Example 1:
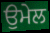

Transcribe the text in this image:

ਉਮੇਲ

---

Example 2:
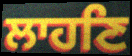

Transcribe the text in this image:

ਲਾਹਣਿ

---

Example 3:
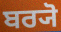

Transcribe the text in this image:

ਬਰ੍ਯੋ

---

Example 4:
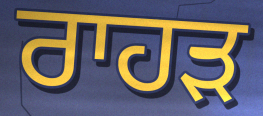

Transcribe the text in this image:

ਰਾਹੜ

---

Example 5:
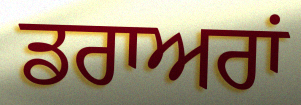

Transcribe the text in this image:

ਡਰਾਅਰਾਂ